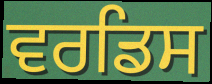
ਵਰਡਿਸ